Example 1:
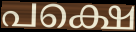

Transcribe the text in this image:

പക്ഷെ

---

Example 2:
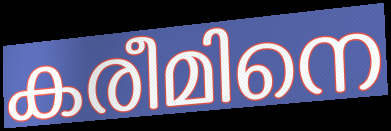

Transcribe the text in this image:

കരീമിനെ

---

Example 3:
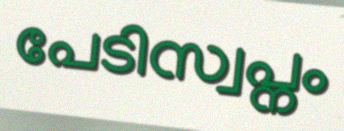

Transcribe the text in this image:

പേടിസ്വപ്നം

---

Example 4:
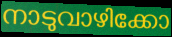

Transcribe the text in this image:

നാടുവാഴിക്കോ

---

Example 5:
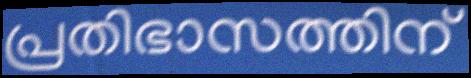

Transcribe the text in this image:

പ്രതിഭാസത്തിന്